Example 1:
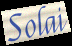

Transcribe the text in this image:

Solai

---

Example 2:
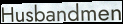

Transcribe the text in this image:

Husbandmen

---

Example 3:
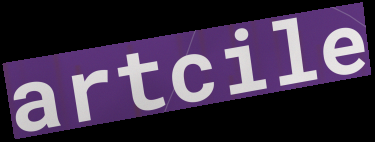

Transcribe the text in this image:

artcile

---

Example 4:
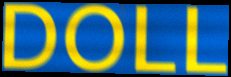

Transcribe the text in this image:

DOLL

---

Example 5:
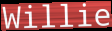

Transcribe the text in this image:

Willie